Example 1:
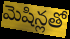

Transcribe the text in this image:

మెషిన్లతో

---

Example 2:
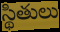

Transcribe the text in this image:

స్థితులు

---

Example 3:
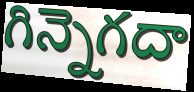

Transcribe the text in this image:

గిన్నెగదా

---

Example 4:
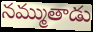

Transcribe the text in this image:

నమ్ముతాడు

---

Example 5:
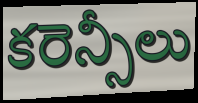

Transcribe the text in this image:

కరెన్సీలు